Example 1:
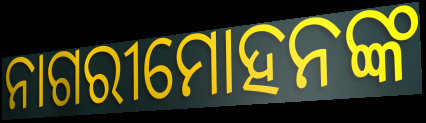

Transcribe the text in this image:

ନାଗରୀମୋହନଙ୍କ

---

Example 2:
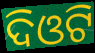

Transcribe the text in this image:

ଦିଓଟି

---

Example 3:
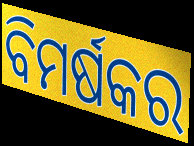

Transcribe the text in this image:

ବିମର୍ଷକର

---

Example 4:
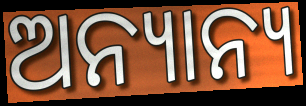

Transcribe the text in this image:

ଅନ୍ୟାନ୍ୟ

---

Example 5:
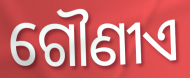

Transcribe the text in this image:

ଗୌଣୀଏ